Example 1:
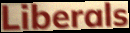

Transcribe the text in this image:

Liberals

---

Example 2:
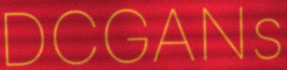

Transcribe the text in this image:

DCGANs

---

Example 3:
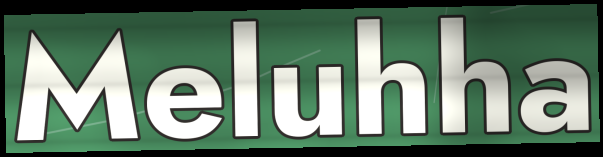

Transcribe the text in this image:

Meluhha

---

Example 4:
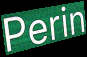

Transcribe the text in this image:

Perin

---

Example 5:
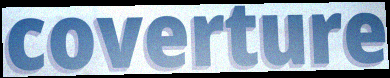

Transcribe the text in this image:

coverture